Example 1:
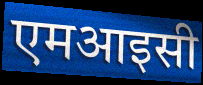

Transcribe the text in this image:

एमआइसी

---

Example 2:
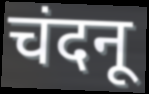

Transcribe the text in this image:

चंदनू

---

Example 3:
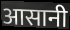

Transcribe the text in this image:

आसानी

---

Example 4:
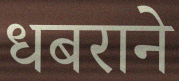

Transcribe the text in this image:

धबराने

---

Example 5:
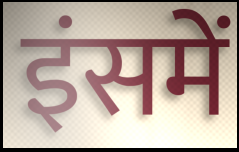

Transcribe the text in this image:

इंसमें